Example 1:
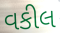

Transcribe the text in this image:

વકીલ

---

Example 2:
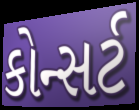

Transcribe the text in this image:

કોન્સર્ટ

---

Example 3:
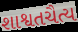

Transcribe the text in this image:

શાશ્વતચૈત્ય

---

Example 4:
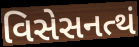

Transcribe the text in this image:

વિસેસનત્થં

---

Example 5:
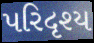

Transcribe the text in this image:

પરિદૃશ્ય